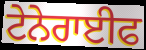
ਟੇਨੇਰਾਈਫ